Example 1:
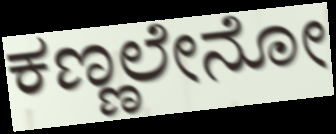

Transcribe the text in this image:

ಕಣ್ಣಲೇನೋ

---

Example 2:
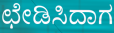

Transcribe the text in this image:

ಛೇಡಿಸಿದಾಗ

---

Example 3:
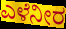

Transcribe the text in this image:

ಎಳೆನೀರ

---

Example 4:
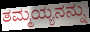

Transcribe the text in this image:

ತಮ್ಮಯ್ಯನನ್ನು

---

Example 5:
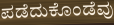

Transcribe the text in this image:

ಪಡೆದುಕೊಂಡೆವು